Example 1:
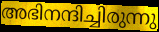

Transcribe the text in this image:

അഭിനന്ദിച്ചിരുന്നു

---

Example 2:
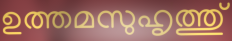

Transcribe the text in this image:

ഉത്തമസുഹൃത്തു്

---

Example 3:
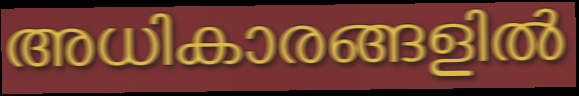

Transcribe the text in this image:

അധികാരങ്ങളിൽ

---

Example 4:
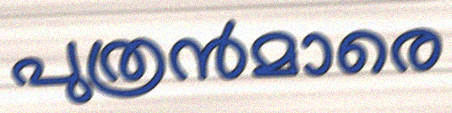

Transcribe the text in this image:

പുത്രൻമാരെ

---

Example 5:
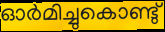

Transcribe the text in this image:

ഓർമിച്ചുകൊണ്ടു്